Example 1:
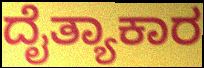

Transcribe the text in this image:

ದೈತ್ಯಾಕಾರ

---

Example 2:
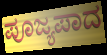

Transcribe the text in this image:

ಪೂಜ್ಯಪಾದ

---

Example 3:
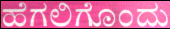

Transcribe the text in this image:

ಹೆಗಲಿಗೊಂದು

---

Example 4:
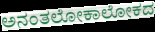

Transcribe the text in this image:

ಅನಂತಲೋಕಾಲೋಕದ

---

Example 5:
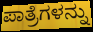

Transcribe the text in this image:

ಪಾತ್ರೆಗಳನ್ನು